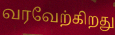
வரவேற்கிறது